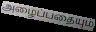
அழைப்பதையும்